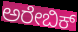
ಅರೇಬಿಕ್